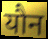
यौन